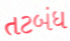
તટબંધ